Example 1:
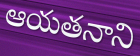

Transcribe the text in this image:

ఆయతనాని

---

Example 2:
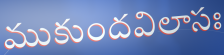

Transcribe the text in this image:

ముకుందవిలాసః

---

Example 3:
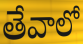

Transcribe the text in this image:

తేవాలో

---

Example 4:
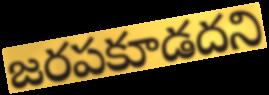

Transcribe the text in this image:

జరపకూడదని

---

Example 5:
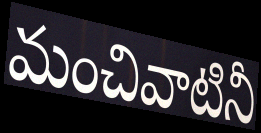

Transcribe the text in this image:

మంచివాటినీ